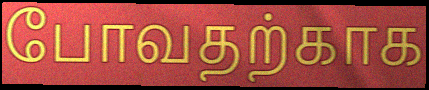
போவதற்காக